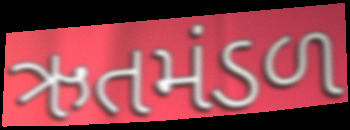
ઋતમંડળ